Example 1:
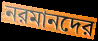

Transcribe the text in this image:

নরমানদের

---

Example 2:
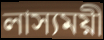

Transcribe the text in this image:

লাস্যময়ী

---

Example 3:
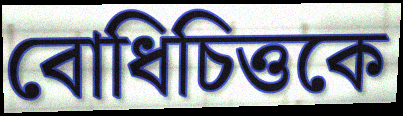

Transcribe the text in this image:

বোধিচিত্তকে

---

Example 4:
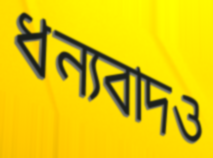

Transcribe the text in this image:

ধন্যবাদও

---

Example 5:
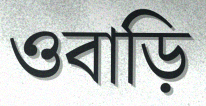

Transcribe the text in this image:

ওবাড়ি